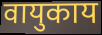
वायुकाय